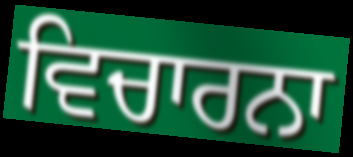
ਵਿਚਾਰਨਾ